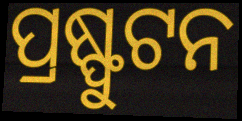
ପ୍ରଷ୍ଫୁଟନ